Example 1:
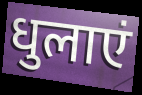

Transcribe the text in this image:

धुलाएं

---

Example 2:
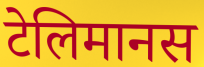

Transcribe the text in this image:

टेलिमानस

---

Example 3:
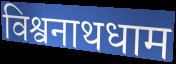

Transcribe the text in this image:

विश्वनाथधाम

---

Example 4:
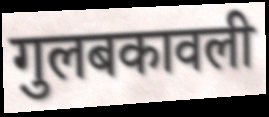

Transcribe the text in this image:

गुलबकावली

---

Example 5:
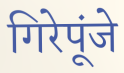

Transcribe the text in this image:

गिरेपूंजे